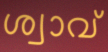
ശ്വാവ്